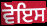
ਵੋਇਸ